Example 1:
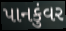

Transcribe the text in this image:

પાનકુંવર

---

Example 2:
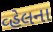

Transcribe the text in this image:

વ્હેલના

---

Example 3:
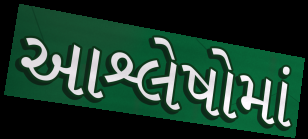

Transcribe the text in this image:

આશ્લેષોમાં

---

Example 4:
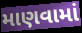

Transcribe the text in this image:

માણવામાં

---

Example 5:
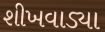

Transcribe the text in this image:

શીખવાડ્યા